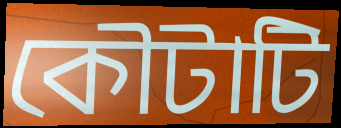
কৌটাটি